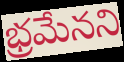
భ్రమేనని